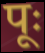
पूः